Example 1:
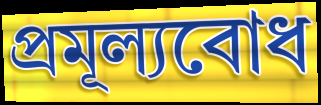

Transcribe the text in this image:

প্ৰমূল্যবোধ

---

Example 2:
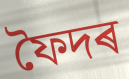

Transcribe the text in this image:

ফৈদৰ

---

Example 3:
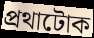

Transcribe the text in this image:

প্ৰথাটোক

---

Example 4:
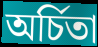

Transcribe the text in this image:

অৰ্চিতা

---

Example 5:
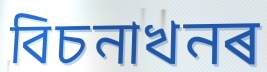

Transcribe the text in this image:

বিচনাখনৰ